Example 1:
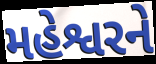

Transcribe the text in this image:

મહેશ્વરને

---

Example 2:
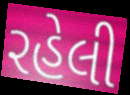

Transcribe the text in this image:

રહેલી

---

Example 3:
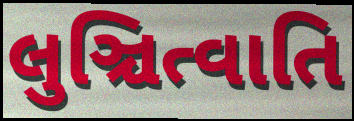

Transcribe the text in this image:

લુઞ્ચિત્વાતિ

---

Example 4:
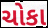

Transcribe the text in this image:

ચોકા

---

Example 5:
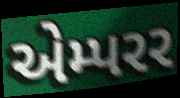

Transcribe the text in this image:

એમ્પરર